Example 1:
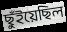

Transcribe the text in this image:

ছুঁইয়েছিল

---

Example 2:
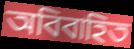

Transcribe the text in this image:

অবিবাহিত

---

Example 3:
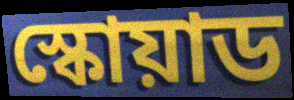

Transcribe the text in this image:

স্কোয়াড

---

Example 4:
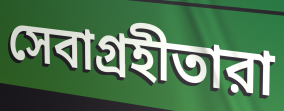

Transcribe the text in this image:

সেবাগ্রহীতারা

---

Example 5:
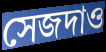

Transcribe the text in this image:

সেজদাও